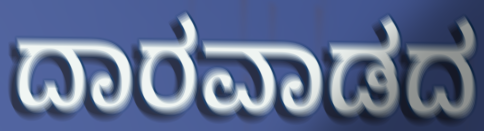
ದಾರವಾಡದ